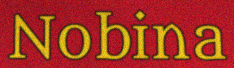
Nobina